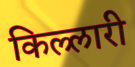
किल्लारी